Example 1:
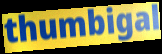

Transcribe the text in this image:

thumbigal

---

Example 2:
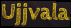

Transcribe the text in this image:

Ujjvala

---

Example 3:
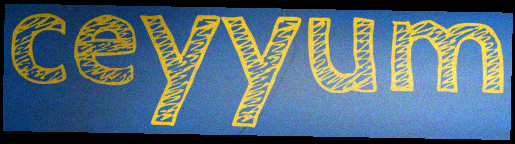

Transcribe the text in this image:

ceyyum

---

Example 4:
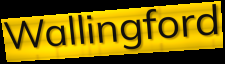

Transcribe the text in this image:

Wallingford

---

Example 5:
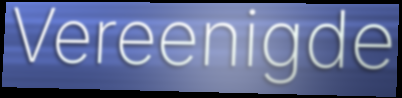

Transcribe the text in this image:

Vereenigde